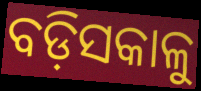
ବଡ଼ିସକାଳୁ